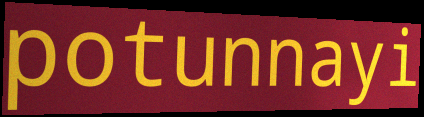
potunnayi